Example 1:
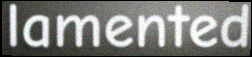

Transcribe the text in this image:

lamented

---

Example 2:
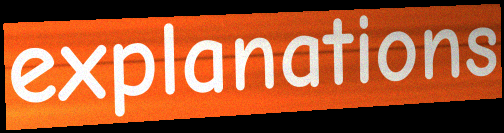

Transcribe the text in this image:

explanations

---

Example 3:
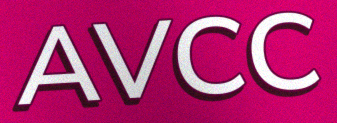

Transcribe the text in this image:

AVCC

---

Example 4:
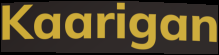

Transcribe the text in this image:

Kaarigan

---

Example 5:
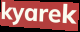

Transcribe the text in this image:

kyarek